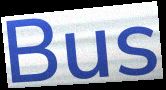
Bus